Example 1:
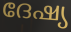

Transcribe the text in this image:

ദേഷ്യ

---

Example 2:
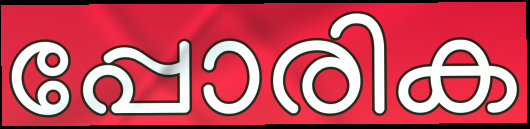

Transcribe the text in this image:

പ്പോരിക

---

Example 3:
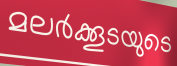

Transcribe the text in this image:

മലർക്കൂടയുടെ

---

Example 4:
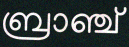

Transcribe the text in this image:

ബ്രാഞ്ച്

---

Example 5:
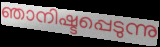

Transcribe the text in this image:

ഞാനിഷ്ടപ്പെടുന്നു